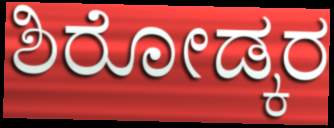
ಶಿರೋಡ್ಕರ